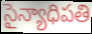
సైన్యాధిపతి